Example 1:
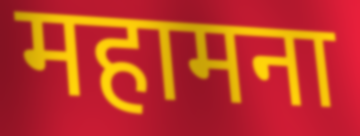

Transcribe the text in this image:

महामना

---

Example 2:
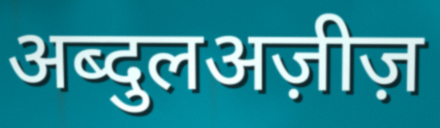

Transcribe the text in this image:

अब्दुलअज़ीज़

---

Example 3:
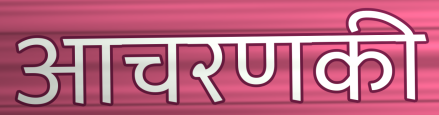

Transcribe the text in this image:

आचरणकी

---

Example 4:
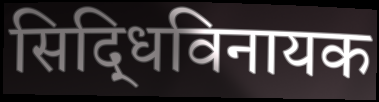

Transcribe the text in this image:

सिद्धिविनायक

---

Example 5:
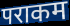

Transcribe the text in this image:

पराकम